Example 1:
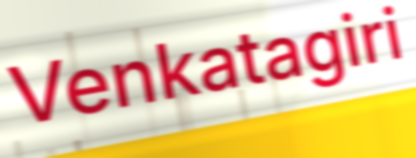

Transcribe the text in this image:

Venkatagiri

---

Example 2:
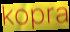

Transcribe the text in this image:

kopra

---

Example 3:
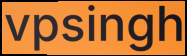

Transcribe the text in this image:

vpsingh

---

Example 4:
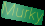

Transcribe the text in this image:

Murky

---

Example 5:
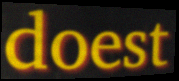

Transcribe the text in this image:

doest